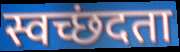
स्वच्छंदता